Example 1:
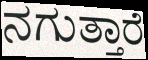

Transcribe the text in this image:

ನಗುತ್ತಾರೆ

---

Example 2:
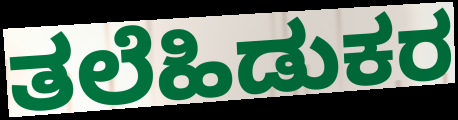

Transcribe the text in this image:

ತಲೆಹಿಡುಕರ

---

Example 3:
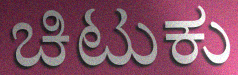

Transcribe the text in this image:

ಚಿಟುಕು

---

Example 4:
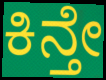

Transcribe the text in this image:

ಕಿನ್ತೇ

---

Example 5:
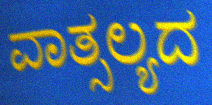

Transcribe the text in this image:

ವಾತ್ಸಲ್ಯದ